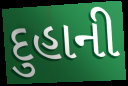
દુહાની